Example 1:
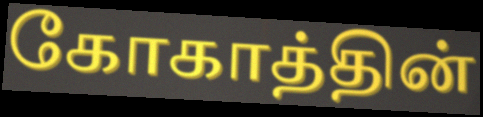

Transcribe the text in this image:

கோகாத்தின்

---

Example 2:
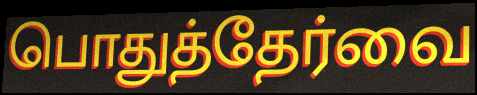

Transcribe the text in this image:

பொதுத்தேர்வை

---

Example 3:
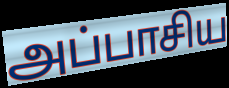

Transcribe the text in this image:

அப்பாசிய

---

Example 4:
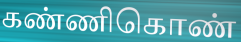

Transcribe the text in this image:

கண்ணிகொண்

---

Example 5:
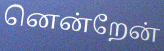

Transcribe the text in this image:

னென்றேன்